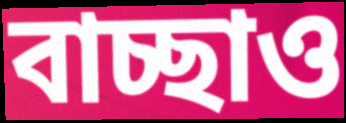
বাচ্ছাও